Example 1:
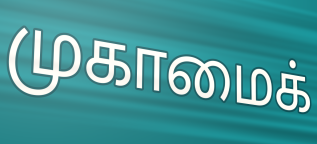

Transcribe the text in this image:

முகாமைக்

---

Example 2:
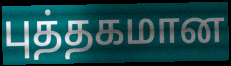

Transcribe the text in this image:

புத்தகமான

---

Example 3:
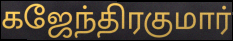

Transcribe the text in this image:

கஜேந்திரகுமார்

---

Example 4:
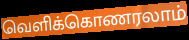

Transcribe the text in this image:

வெளிக்கொணரலாம்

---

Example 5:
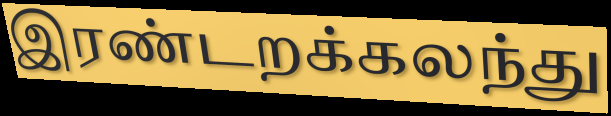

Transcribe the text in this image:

இரண்டறக்கலந்து